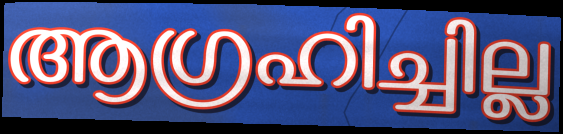
ആഗ്രഹിച്ചില്ല